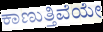
ಕಾಣುತ್ತಿವೆಯೇ